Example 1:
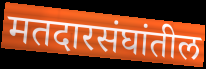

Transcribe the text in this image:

मतदारसंघांतील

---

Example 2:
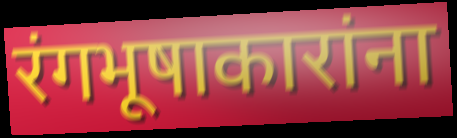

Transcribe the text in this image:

रंगभूषाकारांना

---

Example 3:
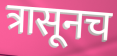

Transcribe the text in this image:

त्रासूनच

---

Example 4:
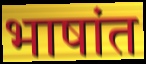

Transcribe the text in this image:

भाषांत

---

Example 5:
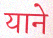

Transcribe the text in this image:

याने